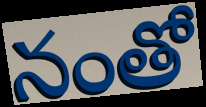
నంతో